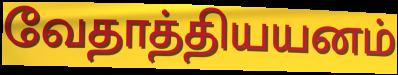
வேதாத்தியயனம்